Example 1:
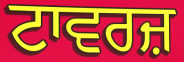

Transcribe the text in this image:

ਟਾਵਰਜ਼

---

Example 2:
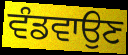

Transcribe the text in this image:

ਵੰਡਵਾਉਣ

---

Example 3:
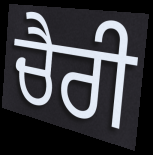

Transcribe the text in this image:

ਚੈਰੀ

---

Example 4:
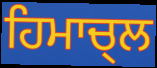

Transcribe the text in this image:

ਹਿਮਾਚ੍ਲ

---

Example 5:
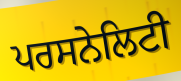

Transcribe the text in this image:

ਪਰਸਨੇਲਿਟੀ